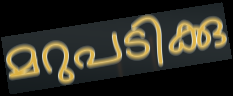
മറുപടിക്കു